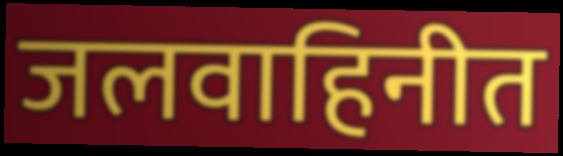
जलवाहिनीत